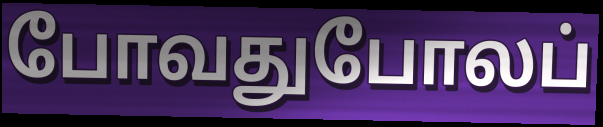
போவதுபோலப்